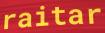
raitar